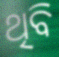
ଥିବି